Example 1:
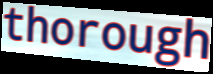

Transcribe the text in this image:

thorough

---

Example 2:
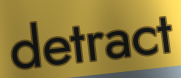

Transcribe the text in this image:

detract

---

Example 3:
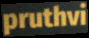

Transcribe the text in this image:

pruthvi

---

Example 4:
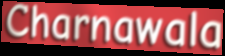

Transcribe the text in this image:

Charnawala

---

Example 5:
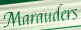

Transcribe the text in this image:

Marauders